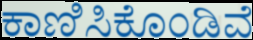
ಕಾಣಿಸಿಕೊಂಡಿವೆ